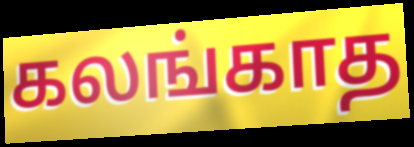
கலங்காத